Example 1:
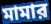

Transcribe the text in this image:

মামার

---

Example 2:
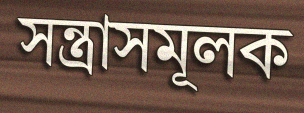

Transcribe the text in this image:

সন্ত্রাসমূলক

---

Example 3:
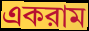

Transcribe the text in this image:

একরাম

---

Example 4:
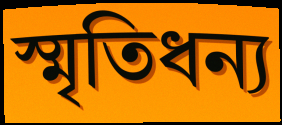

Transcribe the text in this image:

স্মৃতিধন্য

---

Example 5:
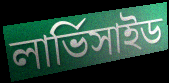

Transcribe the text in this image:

লার্ভিসাইড